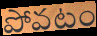
పోవటం